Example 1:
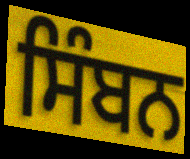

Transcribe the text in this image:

ਸਿੰਬਨ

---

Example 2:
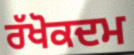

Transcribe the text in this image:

ਰੱਖੋਕਦਮ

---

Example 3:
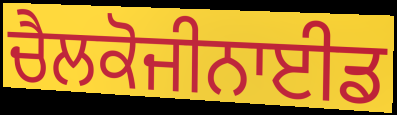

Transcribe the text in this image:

ਚੈਲਕੋਜੀਨਾਈਡ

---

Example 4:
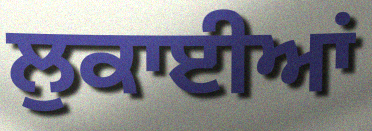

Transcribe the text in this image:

ਲੁਕਾਈਆਂ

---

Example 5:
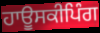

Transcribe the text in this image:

ਹਾਊਸਕੀਪਿੰਗ